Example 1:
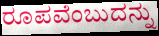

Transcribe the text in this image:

ರೂಪವೆಂಬುದನ್ನು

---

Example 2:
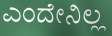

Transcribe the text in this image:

ಎಂದೇನಿಲ್ಲ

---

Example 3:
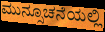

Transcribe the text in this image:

ಮುನ್ಸೂಚನೆಯಲ್ಲಿ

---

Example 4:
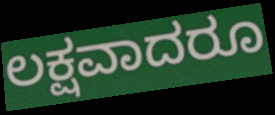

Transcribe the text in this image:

ಲಕ್ಷವಾದರೂ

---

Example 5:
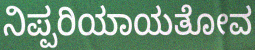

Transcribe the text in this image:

ನಿಪ್ಪರಿಯಾಯತೋವ